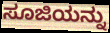
ಸೂಜಿಯನ್ನು